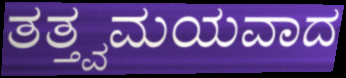
ತತ್ತ್ವಮಯವಾದ